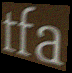
tfa